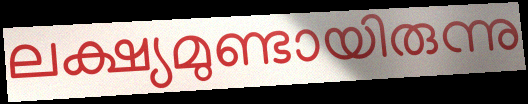
ലക്ഷ്യമുണ്ടായിരുന്നു